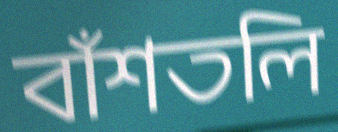
বাঁশতলি